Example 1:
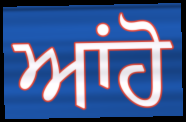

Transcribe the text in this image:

ਆਂਹੋ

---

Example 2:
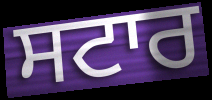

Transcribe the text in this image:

ਸਟਾਰ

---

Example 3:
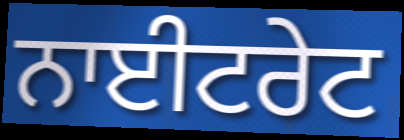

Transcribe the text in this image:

ਨਾਈਟਰੇਟ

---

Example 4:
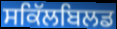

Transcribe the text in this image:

ਸਕਿੱਲਬਿਲਡ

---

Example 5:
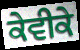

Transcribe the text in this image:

ਕੇਵੀਕੇ